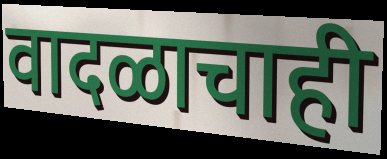
वादळाचाही